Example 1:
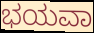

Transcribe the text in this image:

ಭಯವಾ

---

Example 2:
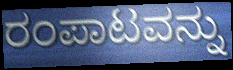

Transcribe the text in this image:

ರಂಪಾಟವನ್ನು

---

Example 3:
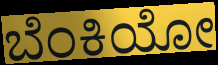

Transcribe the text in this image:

ಬೆಂಕಿಯೋ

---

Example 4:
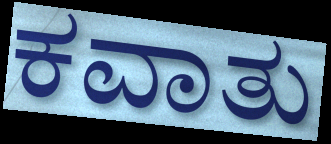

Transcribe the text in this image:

ಕವಾತು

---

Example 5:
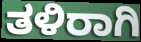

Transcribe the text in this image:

ತಳಿರಾಗಿ